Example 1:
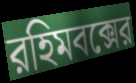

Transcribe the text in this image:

রহিমবক্সের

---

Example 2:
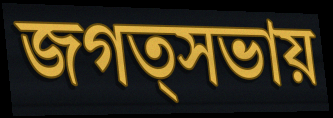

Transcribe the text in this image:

জগত্সভায়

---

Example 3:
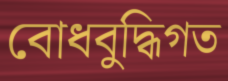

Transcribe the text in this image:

বোধবুদ্ধিগত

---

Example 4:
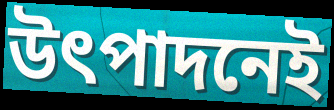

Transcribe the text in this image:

উৎপাদনেই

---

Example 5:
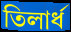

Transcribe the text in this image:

তিলার্ধ